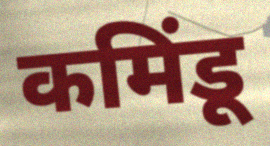
कमिंडू